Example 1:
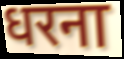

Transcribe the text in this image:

धरना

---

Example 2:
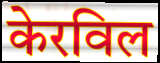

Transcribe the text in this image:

केरविल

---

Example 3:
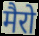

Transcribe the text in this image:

मैरो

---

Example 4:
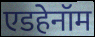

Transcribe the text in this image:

एडहेनॉम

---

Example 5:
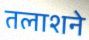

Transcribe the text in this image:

तलाशने